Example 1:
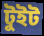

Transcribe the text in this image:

টুইট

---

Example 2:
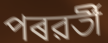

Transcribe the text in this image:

পৰৱৰ্তী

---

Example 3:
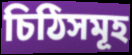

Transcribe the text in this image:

চিঠিসমূহ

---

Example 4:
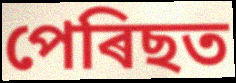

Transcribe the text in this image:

পেৰিছত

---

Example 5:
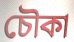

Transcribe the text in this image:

চৌকা